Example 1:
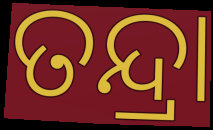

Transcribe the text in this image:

ତନ୍ଦ୍ରା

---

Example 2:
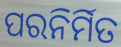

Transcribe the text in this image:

ପରନିର୍ମିତ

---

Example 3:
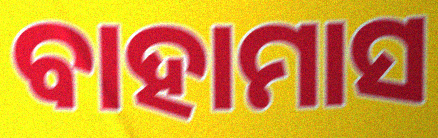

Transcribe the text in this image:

ବାହାମାସ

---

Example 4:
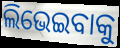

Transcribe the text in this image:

ଲିଭେଇବାକୁ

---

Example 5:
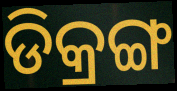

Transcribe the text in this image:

ଡିକ୍ରଙ୍ଗ